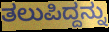
ತಲುಪಿದ್ದನ್ನು